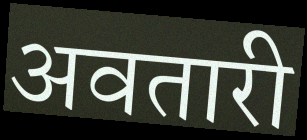
अवतारी